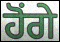
ਹੋਂਗੇ